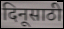
दिनूसाठी